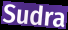
Sudra